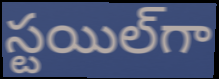
స్టయిల్‌గా